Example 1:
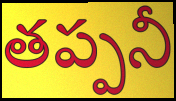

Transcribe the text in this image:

తప్పనీ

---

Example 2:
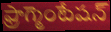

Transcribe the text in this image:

ఫ్రాగ్మెంటేషన్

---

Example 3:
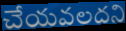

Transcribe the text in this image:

చేయవలదని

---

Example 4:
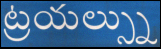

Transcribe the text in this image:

ట్రయల్స్ను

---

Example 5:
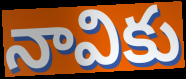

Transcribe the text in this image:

నావికు